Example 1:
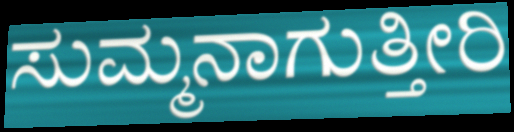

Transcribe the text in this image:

ಸುಮ್ಮನಾಗುತ್ತೀರಿ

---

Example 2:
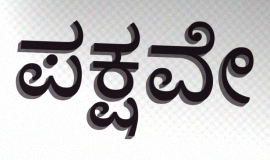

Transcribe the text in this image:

ಪಕ್ಷವೇ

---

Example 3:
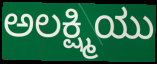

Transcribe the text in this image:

ಅಲಕ್ಷ್ಮಿಯು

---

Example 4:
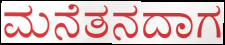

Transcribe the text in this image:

ಮನೆತನದಾಗ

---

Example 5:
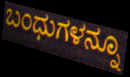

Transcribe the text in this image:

ಬಂಧುಗಳನ್ನೂ